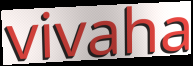
vivaha